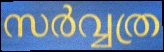
സർവ്വത്ര